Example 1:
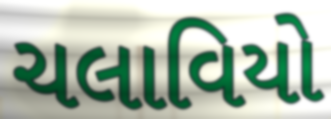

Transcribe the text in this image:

ચલાવિયો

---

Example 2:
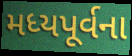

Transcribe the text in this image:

મધ્યપૂર્વના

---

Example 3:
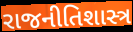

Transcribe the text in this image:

રાજનીતિશાસ્ત્ર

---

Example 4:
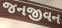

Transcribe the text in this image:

જનજીવન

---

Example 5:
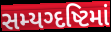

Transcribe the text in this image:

સમ્યગ્દષ્ટિમાં